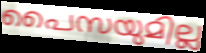
പൈസയുമില്ല